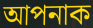
আপনাক